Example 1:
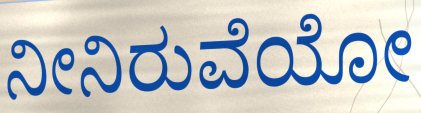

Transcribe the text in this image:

ನೀನಿರುವೆಯೋ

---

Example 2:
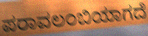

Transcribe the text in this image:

ಪರಾವಲಂಬಿಯಾಗದೆ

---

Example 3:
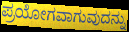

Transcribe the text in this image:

ಪ್ರಯೋಗವಾಗುವುದನ್ನು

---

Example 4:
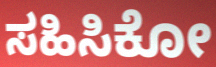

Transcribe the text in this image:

ಸಹಿಸಿಕೋ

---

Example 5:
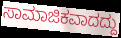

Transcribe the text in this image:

ಸಾಮಾಜಿಕವಾದದ್ದು